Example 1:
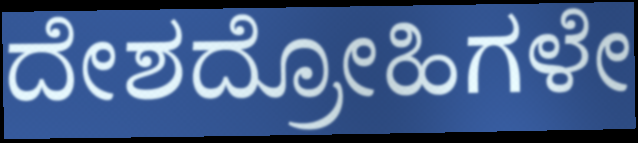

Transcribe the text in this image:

ದೇಶದ್ರೋಹಿಗಳೇ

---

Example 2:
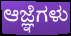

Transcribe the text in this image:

ಆಜ್ಞೆಗಳು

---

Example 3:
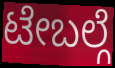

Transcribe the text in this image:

ಟೇಬಲ್ಗೆ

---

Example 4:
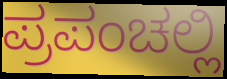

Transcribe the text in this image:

ಪ್ರಪಂಚಲ್ಲಿ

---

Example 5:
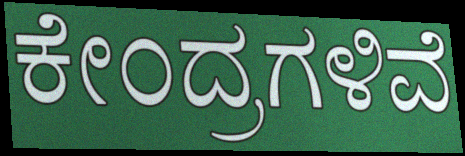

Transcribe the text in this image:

ಕೇಂದ್ರಗಳಿವೆ